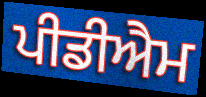
ਪੀਡੀਐਮ